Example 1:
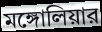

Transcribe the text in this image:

মঙ্গোলিয়ার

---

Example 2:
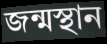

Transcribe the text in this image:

জন্মস্থান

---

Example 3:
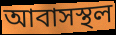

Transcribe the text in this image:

আবাসস্থল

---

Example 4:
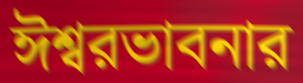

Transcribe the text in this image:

ঈশ্বরভাবনার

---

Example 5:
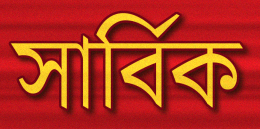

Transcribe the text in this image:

সার্বিক